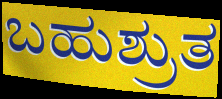
ಬಹುಶ್ರುತ